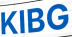
KIBG